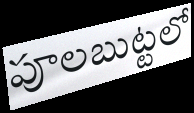
పూలబుట్టలో